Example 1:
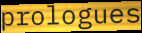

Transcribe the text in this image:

prologues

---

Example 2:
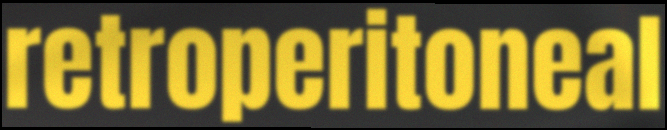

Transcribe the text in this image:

retroperitoneal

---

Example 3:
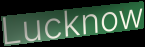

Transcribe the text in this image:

Lucknow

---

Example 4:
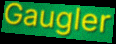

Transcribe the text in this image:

Gaugler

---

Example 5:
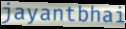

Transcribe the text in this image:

jayantbhai